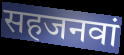
सहजनवां